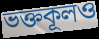
ভক্তকূলও